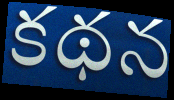
కథన